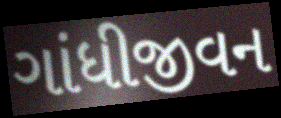
ગાંધીજીવન